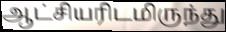
ஆட்சியரிடமிருந்து